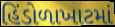
હિંડોળાખાટમાં